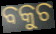
ବକୁଚ